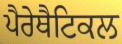
ਪੈਰੇਥੈਟਿਕਲ